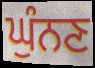
ਘੁੰਨਣ